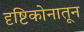
दृष्टिकोनातून